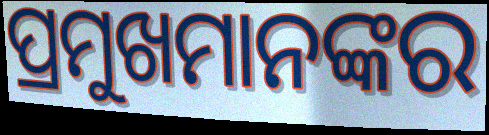
ପ୍ରମୁଖମାନଙ୍କର